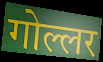
गोल्लर